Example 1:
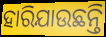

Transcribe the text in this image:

ହାରିଯାଉଛନ୍ତି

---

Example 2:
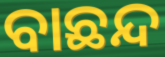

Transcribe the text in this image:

ବାଛନ୍ଦ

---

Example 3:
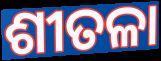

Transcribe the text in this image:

ଶୀତଳା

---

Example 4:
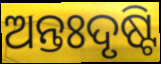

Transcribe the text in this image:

ଅନ୍ତଃଦୃଷ୍ଟି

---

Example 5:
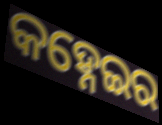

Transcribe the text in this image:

କହ୍ନେଇର